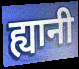
ह्यानी